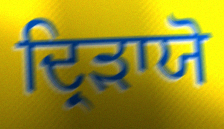
ਦ੍ਰਿੜਾਯੋ